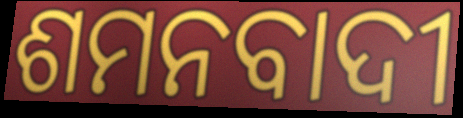
ଶମନବାଦୀ